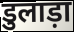
डुलाड़ा